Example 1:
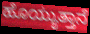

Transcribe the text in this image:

ಹೊಯ್ಯುತ್ತಾನೆ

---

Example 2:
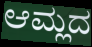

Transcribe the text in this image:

ಆಮ್ಲದ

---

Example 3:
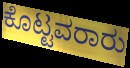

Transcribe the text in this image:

ಕೊಟ್ಟವರಾರು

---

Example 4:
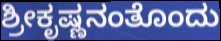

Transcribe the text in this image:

ಶ್ರೀಕೃಷ್ಣನಂತೊಂದು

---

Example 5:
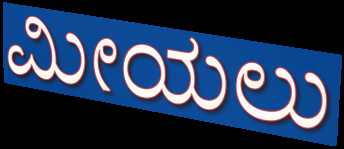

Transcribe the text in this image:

ಮೀಯಲು